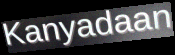
Kanyadaan